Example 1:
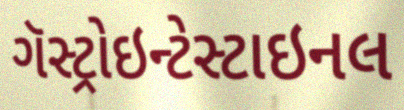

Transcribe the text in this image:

ગૅસ્ટ્રોઇન્ટેસ્ટાઇનલ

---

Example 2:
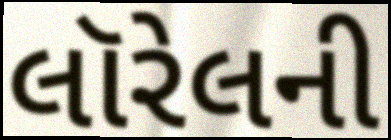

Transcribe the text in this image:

લૉરેલની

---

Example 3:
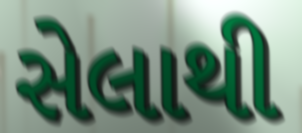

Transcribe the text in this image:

સેલાથી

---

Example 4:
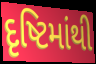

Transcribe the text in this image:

દૃષ્ટિમાંથી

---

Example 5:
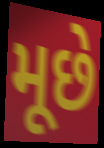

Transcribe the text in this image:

મૂછે